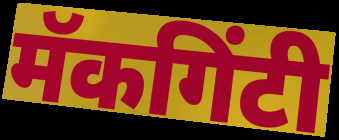
मॅकगिंटी